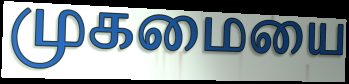
முகமையை